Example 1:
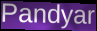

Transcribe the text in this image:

Pandyar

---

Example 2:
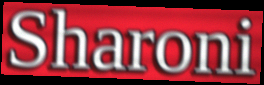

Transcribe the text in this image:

Sharoni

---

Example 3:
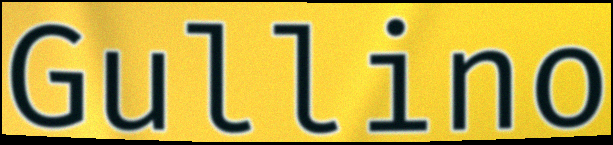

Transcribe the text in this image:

Gullino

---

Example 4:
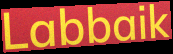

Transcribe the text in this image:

Labbaik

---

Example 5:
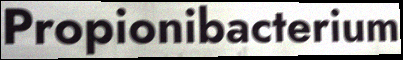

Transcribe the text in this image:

Propionibacterium